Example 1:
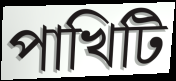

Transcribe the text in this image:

পাখিটি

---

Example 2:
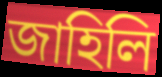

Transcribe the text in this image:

জাহিলি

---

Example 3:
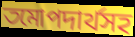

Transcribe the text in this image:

তমোপদার্থসহ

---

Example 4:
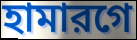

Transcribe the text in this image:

হামারগে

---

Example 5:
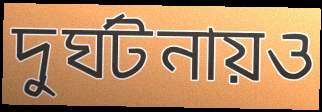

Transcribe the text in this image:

দুর্ঘটনায়ও